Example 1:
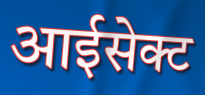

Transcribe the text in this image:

आईसेक्ट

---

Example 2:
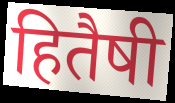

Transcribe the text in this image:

हितैषी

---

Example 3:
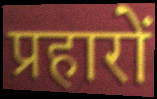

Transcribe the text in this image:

प्रहारों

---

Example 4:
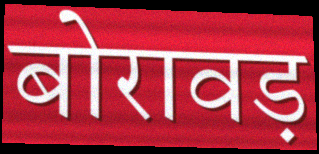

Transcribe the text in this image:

बोरावड़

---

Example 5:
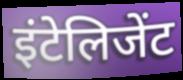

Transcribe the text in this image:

इंटेलिजेंट